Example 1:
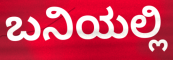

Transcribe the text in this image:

ಬನಿಯಲ್ಲಿ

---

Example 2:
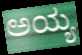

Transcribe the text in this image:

ಅಯ್ಯ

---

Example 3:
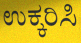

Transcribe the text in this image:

ಉಕ್ಕರಿಸಿ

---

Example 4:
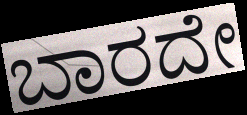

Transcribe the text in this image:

ಬಾರದೇ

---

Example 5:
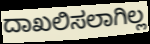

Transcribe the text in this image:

ದಾಖಲಿಸಲಾಗಿಲ್ಲ